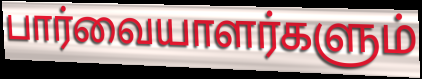
பார்வையாளர்களும்